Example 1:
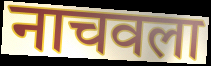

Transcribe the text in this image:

नाचवला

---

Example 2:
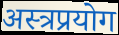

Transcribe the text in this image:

अस्त्रप्रयोग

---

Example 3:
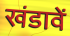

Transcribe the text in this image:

खंडावें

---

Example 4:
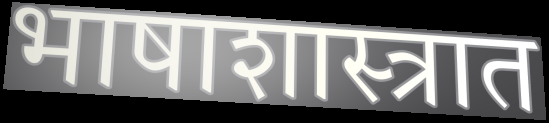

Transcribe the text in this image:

भाषाशास्त्रात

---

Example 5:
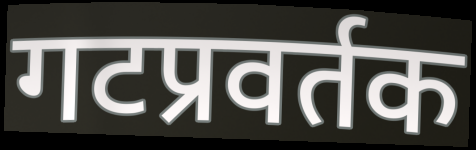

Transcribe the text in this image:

गटप्रवर्तक